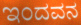
ಇಂದವನ